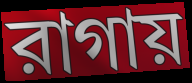
রাগায়